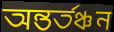
অন্তর্তঞ্চন